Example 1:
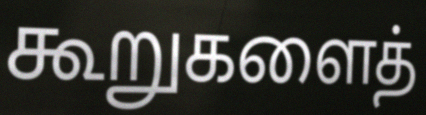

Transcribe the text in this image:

கூறுகளைத்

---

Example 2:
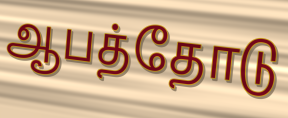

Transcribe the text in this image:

ஆபத்தோடு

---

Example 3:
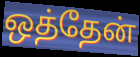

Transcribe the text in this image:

ஒத்தேன்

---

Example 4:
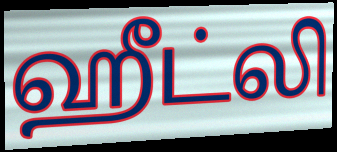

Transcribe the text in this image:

ஹீட்லி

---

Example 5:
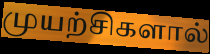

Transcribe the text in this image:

முயற்சிகளால்